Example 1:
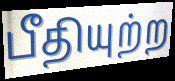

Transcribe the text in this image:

பீதியுற்ற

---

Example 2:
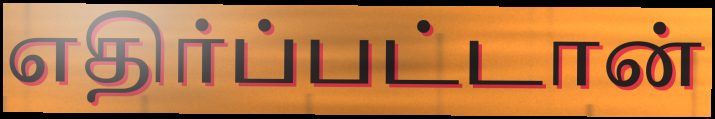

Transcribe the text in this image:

எதிர்ப்பட்டான்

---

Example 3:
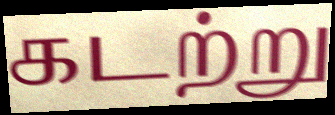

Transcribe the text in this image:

கடற்று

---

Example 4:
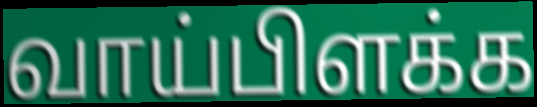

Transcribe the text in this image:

வாய்பிளக்க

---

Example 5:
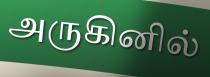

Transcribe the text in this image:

அருகினில்